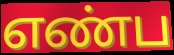
எண்ப